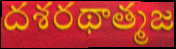
దశరథాత్మజ